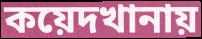
কয়েদখানায়